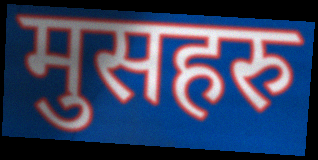
मुसहरु